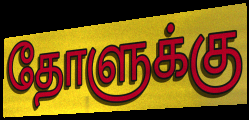
தோளுக்கு